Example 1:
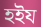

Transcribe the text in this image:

হইয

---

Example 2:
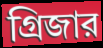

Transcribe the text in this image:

গ্রিজার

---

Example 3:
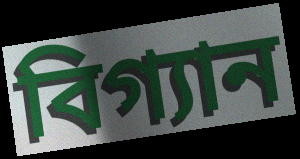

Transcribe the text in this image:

বিগ্যান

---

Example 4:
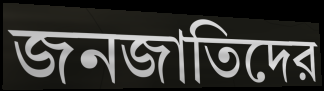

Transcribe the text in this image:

জনজাতিদের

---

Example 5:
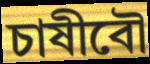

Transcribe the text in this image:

চাষীবৌ